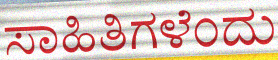
ಸಾಹಿತಿಗಳೆಂದು